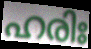
ഹരിഃ